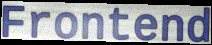
Frontend